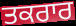
ਤਕਰਾਰ